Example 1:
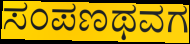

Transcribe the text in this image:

ಸಂಪಣಥವಗ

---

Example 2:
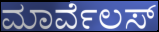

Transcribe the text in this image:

ಮಾರ್ವೆಲಸ್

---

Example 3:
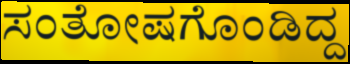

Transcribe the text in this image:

ಸಂತೋಷಗೊಂಡಿದ್ದ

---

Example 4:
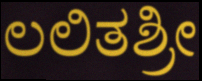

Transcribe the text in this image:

ಲಲಿತಶ್ರೀ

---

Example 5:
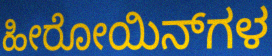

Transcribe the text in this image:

ಹೀರೋಯಿನ್‌ಗಳ